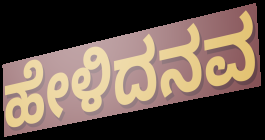
ಹೇಳಿದನವ